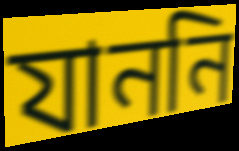
যাননি